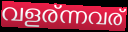
വളര്ന്നവര്